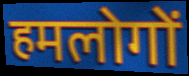
हमलोगों